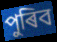
পুৰিব